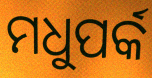
ମଧୁପର୍କ